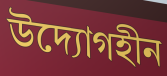
উদ্যোগহীন